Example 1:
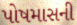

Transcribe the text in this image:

પોષમાસની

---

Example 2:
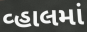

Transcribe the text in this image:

વ્હાલમાં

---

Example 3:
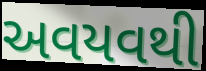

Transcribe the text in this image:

અવયવથી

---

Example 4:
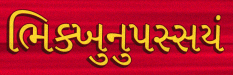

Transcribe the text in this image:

ભિક્ખુનુપસ્સયં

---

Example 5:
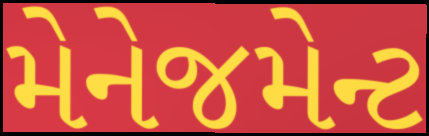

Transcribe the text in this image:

મેનેજમેન્ટ